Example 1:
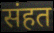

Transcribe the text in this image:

संहत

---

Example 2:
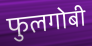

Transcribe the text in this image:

फुलगोबी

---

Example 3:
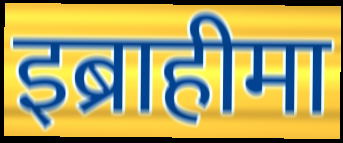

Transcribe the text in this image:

इब्राहीमा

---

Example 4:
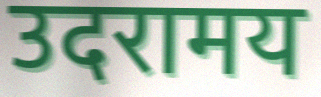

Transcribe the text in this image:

उदरामय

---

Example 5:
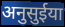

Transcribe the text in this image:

अनुसुईया